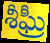
శీఘ్రీ